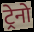
ट्रेनो